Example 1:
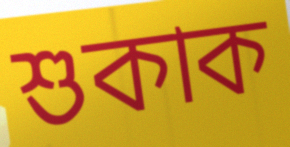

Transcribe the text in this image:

শুকাক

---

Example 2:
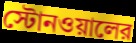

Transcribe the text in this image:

স্টোনওয়ালের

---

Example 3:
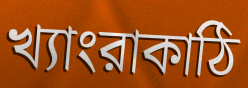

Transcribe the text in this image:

খ্যাংরাকাঠি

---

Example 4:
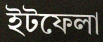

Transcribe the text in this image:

ইটফেলা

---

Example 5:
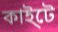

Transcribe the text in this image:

কাই্টে